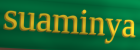
suaminya